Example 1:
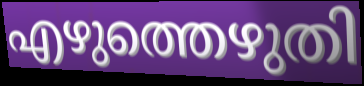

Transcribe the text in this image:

എഴുത്തെഴുതി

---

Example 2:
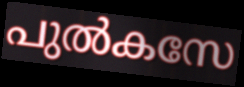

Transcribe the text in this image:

പുൽകസേ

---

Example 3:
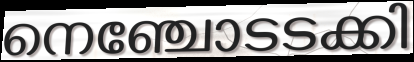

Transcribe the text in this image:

നെഞ്ചോടടക്കി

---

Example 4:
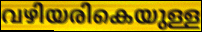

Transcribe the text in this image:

വഴിയരികെയുള്ള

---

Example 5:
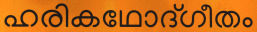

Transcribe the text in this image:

ഹരികഥോദ്ഗീതം